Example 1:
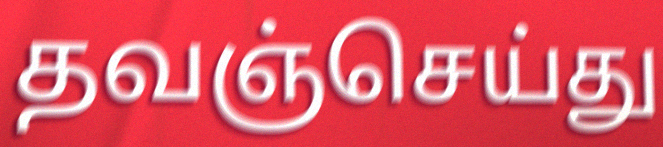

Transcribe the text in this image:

தவஞ்செய்து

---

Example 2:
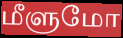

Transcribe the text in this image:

மீளுமோ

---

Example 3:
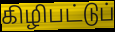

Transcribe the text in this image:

கிழிபட்டுப்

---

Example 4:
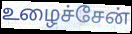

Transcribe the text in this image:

உழைச்சேன்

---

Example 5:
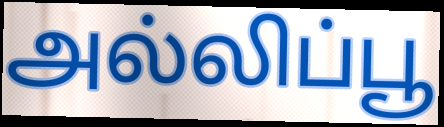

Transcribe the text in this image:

அல்லிப்பூ